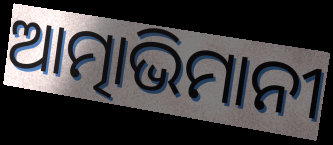
ଆତ୍ମାଭିମାନୀ